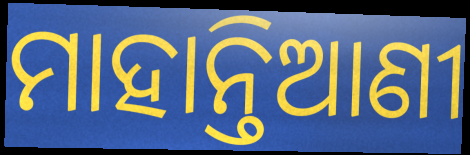
ମାହାନ୍ତିଆଣୀ